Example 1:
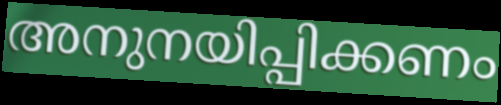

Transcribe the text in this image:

അനുനയിപ്പിക്കണം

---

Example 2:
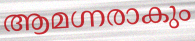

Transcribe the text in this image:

ആമഗ്നരാകും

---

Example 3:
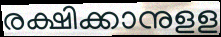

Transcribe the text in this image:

രക്ഷിക്കാനുളള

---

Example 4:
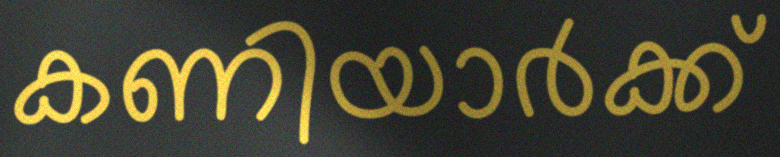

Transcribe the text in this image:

കണിയാർക്ക്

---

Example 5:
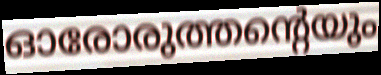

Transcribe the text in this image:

ഓരോരുത്തന്റെയും